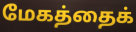
மேகத்தைக்